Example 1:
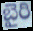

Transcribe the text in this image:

బైరి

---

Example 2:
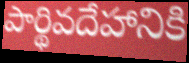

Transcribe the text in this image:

పార్థివదేహానికి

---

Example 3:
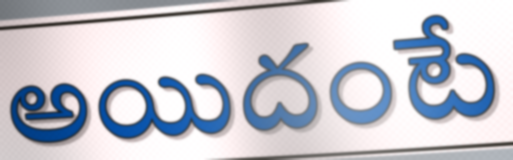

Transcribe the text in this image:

అయిదంటే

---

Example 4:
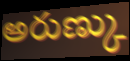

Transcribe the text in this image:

అరుణ్కు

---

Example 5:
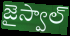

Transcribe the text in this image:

జైస్వాల్